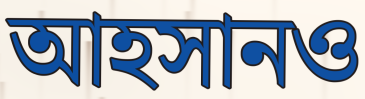
আহসানও